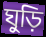
ঘুড়ি